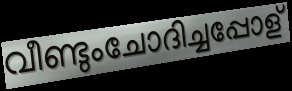
വീണ്ടുംചോദിച്ചപ്പോള്